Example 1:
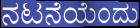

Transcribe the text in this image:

ನಟನೆಯೆಂದು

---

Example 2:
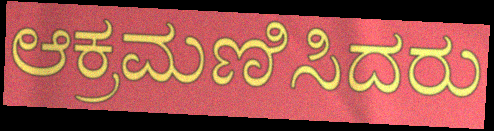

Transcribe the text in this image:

ಆಕ್ರಮಣಿಸಿದರು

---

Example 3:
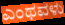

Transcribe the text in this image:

ಎಂಥವಳು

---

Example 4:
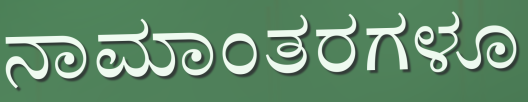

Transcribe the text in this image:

ನಾಮಾಂತರಗಳೂ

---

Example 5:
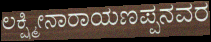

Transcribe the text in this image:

ಲಕ್ಷ್ಮೀನಾರಾಯಣಪ್ಪನವರ